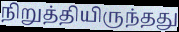
நிறுத்தியிருந்தது